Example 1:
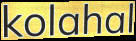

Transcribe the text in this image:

kolahal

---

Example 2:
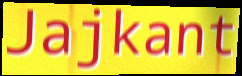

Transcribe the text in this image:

Jajkant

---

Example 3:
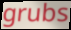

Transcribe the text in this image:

grubs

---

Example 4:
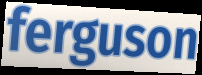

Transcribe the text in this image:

ferguson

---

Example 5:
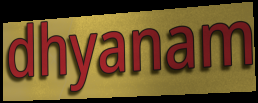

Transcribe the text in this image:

dhyanam